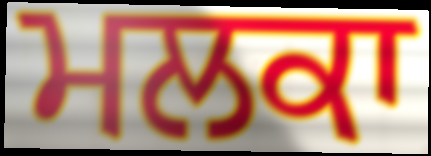
ਮਲਕਾ